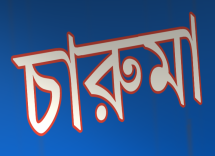
চারুমা